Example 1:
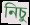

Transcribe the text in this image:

নিচু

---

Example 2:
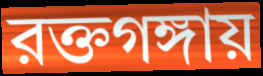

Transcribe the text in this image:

রক্তগঙ্গায়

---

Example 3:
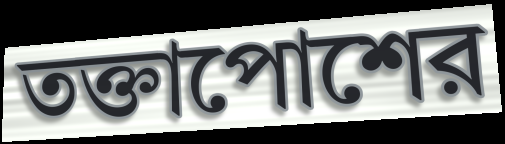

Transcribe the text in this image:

তক্তাপোশের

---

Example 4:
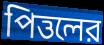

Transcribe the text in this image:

পিত্তলের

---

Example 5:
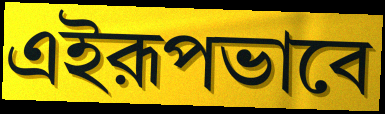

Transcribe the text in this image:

এইরূপভাবে